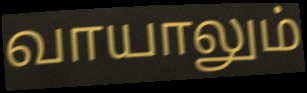
வாயாலும்